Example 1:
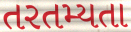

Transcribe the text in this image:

તરતમ્યતા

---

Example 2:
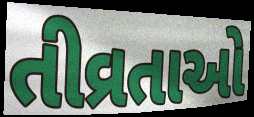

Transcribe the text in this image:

તીવ્રતાઓ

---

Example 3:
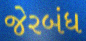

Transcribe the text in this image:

જેરબંધ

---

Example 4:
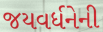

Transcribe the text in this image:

જયવર્ધનેની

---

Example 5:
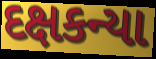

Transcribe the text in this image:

દક્ષકન્યા